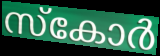
സ്‌കോർ